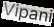
Vipani